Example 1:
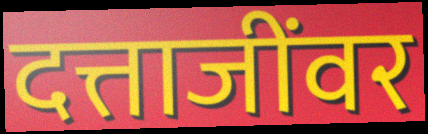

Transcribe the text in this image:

दत्ताजींवर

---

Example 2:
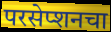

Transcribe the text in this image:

परसेप्शनचा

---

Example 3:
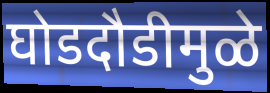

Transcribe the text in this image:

घोडदौडीमुळे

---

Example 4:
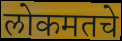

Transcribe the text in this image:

लोकमतचे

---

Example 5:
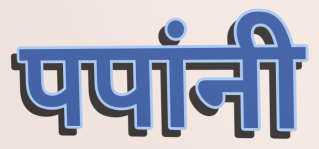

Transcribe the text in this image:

पपांनी